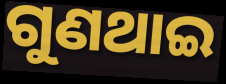
ଗୁଣଥାଇ